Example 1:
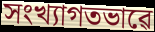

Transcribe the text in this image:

সংখ্যাগতভাৱে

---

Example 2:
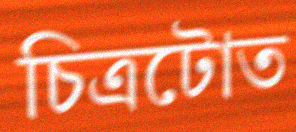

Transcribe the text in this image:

চিত্ৰটোত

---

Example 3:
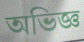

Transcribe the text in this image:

অভিজ্ঞ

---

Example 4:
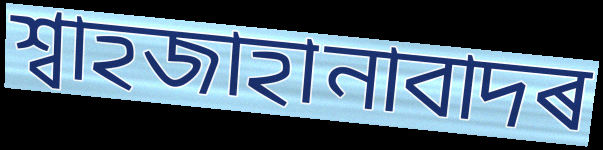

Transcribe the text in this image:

শ্বাহজাহানাবাদৰ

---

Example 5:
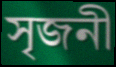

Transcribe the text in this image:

সৃজনী